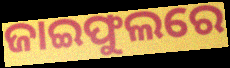
ଜାଇଫୁଲରେ